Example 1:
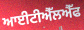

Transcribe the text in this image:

ਆਈਟੀਐੱਲਐੱਫ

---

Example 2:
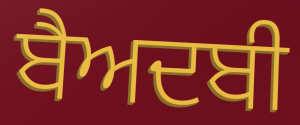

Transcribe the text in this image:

ਬੈਅਦਬੀ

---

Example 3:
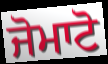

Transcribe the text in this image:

ਜੋਮਾਟੋ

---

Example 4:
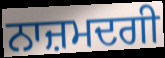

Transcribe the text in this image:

ਨਾਜ਼ਮਦਗੀ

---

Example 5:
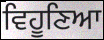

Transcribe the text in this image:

ਵਿਹੂਣਿਆ